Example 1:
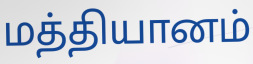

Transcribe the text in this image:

மத்தியானம்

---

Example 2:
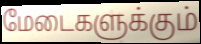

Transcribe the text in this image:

மேடைகளுக்கும்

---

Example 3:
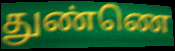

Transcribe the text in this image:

துண்ணெ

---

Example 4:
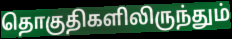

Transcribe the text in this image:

தொகுதிகளிலிருந்தும்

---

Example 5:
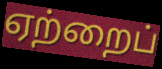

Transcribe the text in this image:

ஏற்றைப்